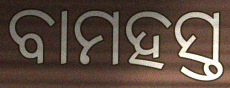
ବାମହସ୍ତ